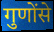
गुणोंसे